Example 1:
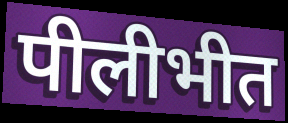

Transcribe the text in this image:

पीलीभीत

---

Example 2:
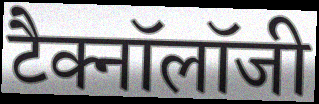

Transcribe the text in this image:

टैक्नॉलॉजी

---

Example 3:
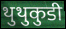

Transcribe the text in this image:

थुथुकुडी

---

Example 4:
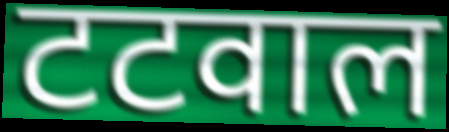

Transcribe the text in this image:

टटवाल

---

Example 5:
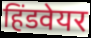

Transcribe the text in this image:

हिंडवेयर